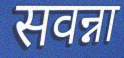
सवन्ना